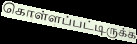
கொள்ளப்பட்டிருக்க